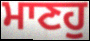
ਮਾਣਹੁ